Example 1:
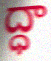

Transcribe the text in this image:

ద్ధా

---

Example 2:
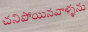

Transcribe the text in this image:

చనిపోయినవాళ్ళను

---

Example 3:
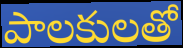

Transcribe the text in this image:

పాలకులతో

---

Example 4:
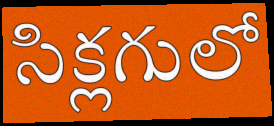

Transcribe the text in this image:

సిక్లగులో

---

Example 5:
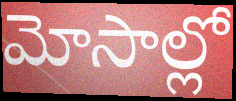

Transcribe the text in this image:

మోసాల్లో